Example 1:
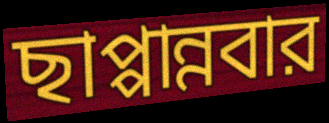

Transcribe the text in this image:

ছাপ্পান্নবার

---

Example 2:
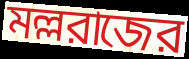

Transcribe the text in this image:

মল্লরাজের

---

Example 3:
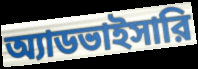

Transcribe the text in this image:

অ্যাডভাইসারি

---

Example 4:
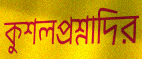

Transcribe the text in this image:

কুশলপ্রশ্নাদির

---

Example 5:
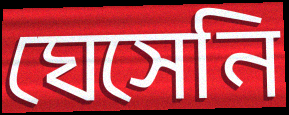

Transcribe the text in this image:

ঘেসেনি